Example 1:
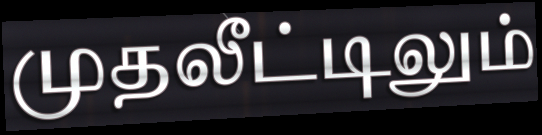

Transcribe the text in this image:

முதலீட்டிலும்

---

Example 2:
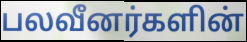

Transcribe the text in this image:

பலவீனர்களின்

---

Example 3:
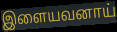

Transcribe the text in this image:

இளையவனாய்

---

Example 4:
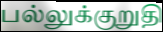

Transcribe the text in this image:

பல்லுக்குறுதி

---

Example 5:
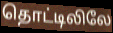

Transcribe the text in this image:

தொட்டிலிலே